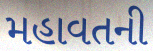
મહાવતની